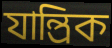
যান্ত্ৰিক